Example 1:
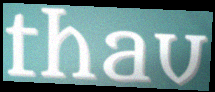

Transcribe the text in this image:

thau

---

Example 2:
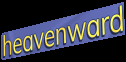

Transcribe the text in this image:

heavenward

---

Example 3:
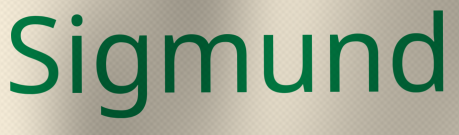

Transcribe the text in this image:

Sigmund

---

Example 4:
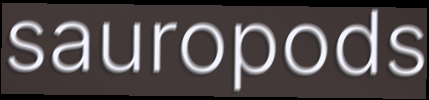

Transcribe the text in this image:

sauropods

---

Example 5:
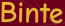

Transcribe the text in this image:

Binte